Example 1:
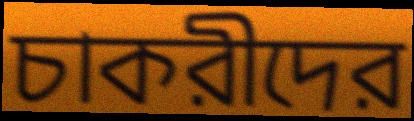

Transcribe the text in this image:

চাকরীদের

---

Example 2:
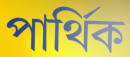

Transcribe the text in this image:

পার্থিক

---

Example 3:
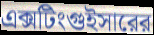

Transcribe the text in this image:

এক্সটিংগুইসারের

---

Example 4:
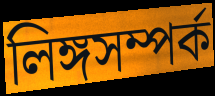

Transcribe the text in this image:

লিঙ্গসম্পর্ক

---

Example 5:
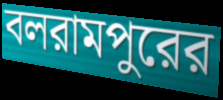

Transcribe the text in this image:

বলরামপুরের